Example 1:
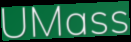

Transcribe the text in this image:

UMass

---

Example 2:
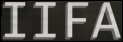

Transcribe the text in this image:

IIFA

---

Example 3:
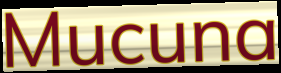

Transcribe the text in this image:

Mucuna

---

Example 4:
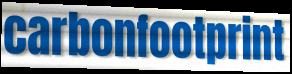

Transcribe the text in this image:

carbonfootprint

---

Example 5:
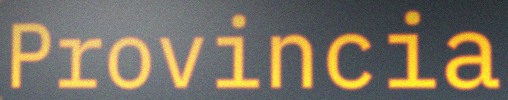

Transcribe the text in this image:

Provincia